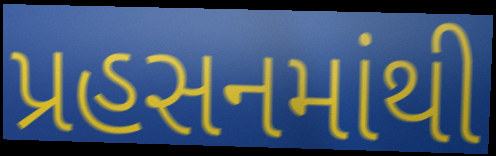
પ્રહસનમાંથી